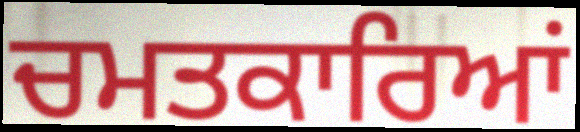
ਚਮਤਕਾਰਿਆਂ